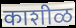
काशीळ